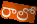
రాలో